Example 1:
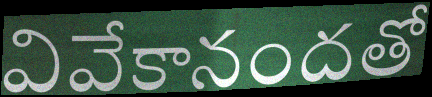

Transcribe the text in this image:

వివేకానందతో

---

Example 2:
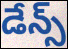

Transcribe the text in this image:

డేన్స్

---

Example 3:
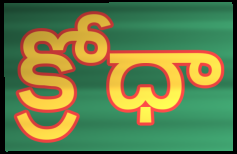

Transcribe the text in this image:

క్రోధా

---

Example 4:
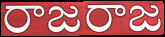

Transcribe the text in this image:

రాజరాజ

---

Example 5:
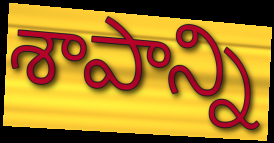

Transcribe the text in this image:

శాపాన్ని